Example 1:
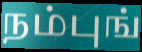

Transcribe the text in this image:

நம்புங்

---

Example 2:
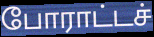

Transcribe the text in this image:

போராட்டச்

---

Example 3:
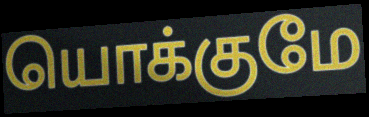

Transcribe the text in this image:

யொக்குமே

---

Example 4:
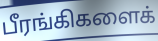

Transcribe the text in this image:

பீரங்கிகளைக்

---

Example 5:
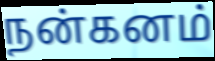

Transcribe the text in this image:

நன்கனம்